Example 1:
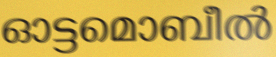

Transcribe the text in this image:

ഓട്ടമൊബീൽ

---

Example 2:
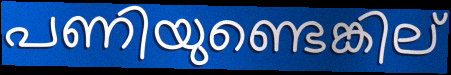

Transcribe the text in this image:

പണിയുണ്ടെങ്കില്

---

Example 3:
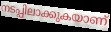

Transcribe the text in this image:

നടപ്പിലാക്കുകയാണ്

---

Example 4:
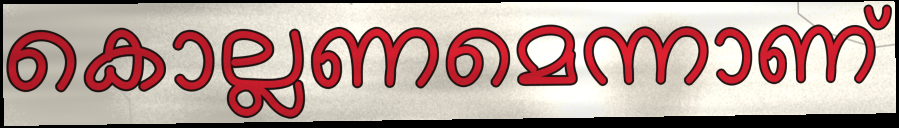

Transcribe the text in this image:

കൊല്ലണമെന്നാണ്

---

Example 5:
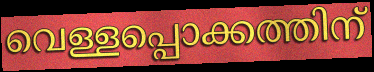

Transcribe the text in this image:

വെള്ളപ്പൊക്കത്തിന്